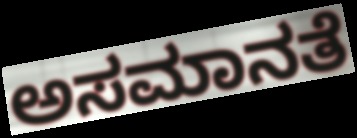
ಅಸಮಾನತೆ